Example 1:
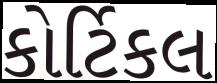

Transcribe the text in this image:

કોર્ટિકલ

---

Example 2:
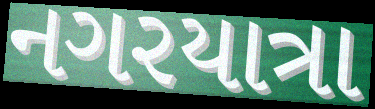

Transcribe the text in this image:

નગરયાત્રા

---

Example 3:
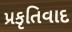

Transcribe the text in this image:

પ્રકૃતિવાદ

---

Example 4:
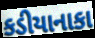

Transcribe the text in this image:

કડીયાનાકા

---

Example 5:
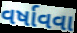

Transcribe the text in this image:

વર્ષાવવા